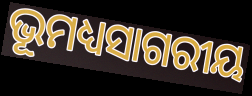
ଭୂମଧ୍ୟସାଗରୀୟ